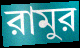
রামুর